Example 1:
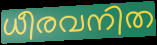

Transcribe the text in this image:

ധീരവനിത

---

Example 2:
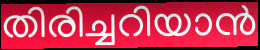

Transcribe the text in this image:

തിരിച്ചറിയാൻ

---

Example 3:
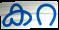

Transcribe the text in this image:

കറ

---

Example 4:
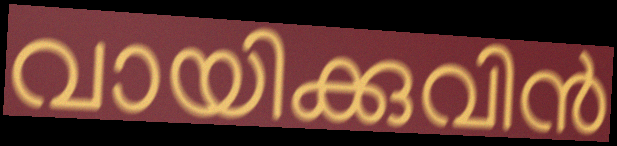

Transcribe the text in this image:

വായിക്കുവിൻ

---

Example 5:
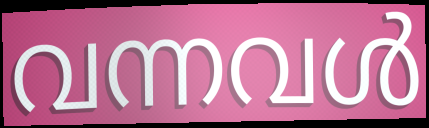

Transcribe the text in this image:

വന്നവൾ